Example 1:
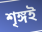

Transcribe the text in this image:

শৃঙ্গই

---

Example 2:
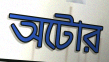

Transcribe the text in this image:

অটোর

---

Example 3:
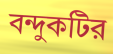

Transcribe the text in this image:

বন্দুকটির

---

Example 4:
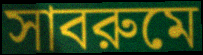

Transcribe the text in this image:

সাবরুমে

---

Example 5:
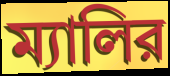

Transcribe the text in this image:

ম্যালির